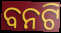
ବନଟି